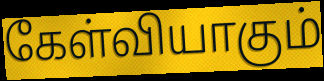
கேள்வியாகும்